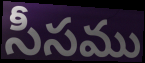
సీసము